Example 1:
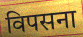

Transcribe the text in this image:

विपसना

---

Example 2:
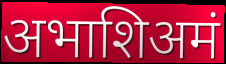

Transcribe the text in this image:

अभाशिअमं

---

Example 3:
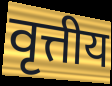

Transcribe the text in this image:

वृत्तीय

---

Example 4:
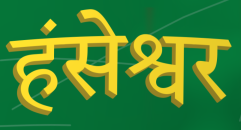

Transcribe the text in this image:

हंसेश्वर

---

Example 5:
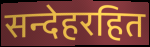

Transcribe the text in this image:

सन्देहरहित